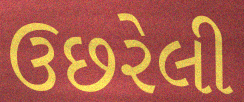
ઉછરેલી